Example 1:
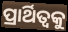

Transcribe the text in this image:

ପ୍ରାର୍ଥିତ୍ୱକୁ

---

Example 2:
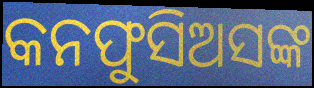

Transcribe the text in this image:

କନଫୁସିଅସଙ୍କ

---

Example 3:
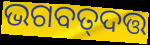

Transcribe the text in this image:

ଭଗବତ୍‌ଦତ୍ତ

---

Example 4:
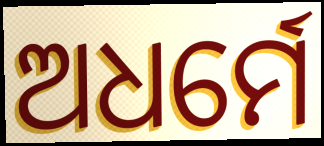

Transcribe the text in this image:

ଅଧର୍ମେ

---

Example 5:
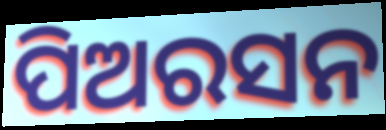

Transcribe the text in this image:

ପିଅରସନ